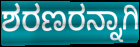
ಶರಣರನ್ನಾಗಿ